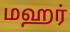
மஹர்